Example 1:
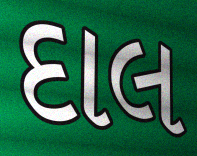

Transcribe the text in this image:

દાલ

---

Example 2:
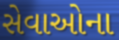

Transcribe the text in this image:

સેવાઓના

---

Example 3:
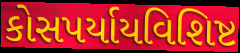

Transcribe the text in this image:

કોસપર્યાયવિશિષ્ટ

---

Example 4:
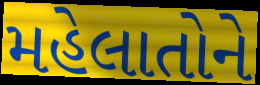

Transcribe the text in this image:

મહેલાતોને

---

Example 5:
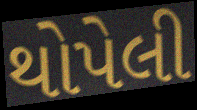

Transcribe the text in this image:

થોપેલી